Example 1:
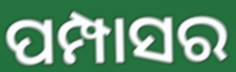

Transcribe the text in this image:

ପମ୍ପାସର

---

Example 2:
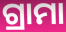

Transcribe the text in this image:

ଗ୍ରାମା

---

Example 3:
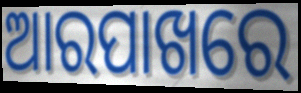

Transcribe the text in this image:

ଆରପାଖରେ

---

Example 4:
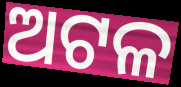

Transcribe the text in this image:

ଅଟଳ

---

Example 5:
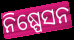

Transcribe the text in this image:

ନିଷ୍ପେସନ